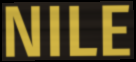
NILE